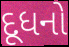
દૂધનો